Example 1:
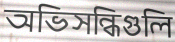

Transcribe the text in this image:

অভিসন্ধিগুলি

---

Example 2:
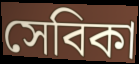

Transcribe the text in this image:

সেবিকা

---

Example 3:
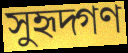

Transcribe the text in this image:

সুহৃদ্গণ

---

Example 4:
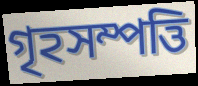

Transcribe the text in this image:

গৃহসম্পত্তি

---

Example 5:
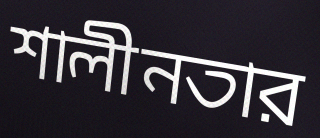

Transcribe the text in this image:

শালীনতার